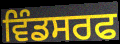
ਵਿੰਡਸਰਫ